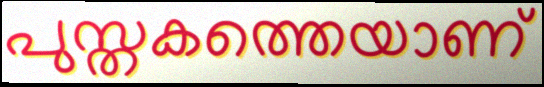
പുസ്തകത്തെയാണ്